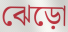
ঝেড়ো